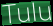
Tulu